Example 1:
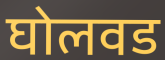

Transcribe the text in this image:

घोलवड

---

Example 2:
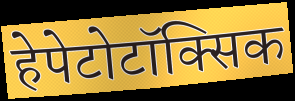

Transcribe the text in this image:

हेपेटोटॉक्सिक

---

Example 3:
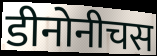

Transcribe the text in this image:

डीनोनीचस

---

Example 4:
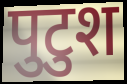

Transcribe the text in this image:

पुटुश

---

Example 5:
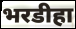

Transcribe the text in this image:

भरडीहा